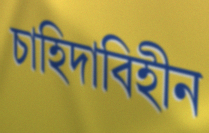
চাহিদাবিহীন